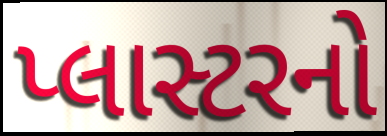
પ્લાસ્ટરનો